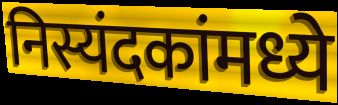
निस्यंदकांमध्ये